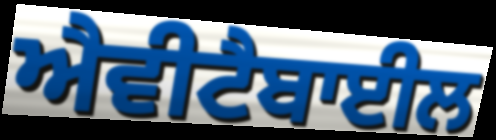
ਐਵੀਟੈਬਾਈਲ